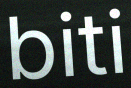
biti